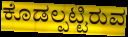
ಕೊಡಲ್ಪಟ್ಟಿರುವ